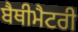
ਬੈਥੀਮੈਟਰੀ